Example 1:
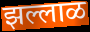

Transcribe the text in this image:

झल्लाळ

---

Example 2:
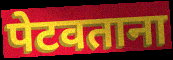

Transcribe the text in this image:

पेटवताना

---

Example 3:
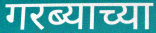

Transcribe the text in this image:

गरब्याच्या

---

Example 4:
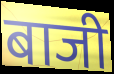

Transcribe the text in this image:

बाजी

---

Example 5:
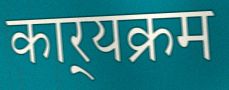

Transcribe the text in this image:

कार्यक्रम